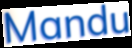
Mandu